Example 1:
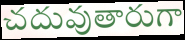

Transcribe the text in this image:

చదువుతారుగా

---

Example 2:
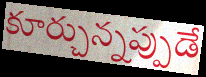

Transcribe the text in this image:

కూర్చున్నప్పుడే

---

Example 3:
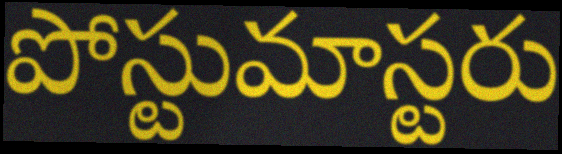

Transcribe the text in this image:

పోస్టుమాస్టరు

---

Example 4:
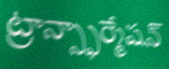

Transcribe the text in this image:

ట్రాన్స్ఫార్మేషన్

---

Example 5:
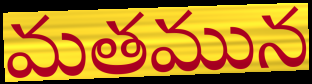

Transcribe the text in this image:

మతమున